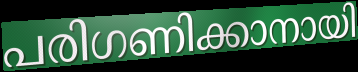
പരിഗണിക്കാനായി